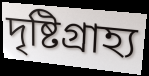
দৃষ্টিগ্রাহ্য